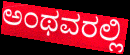
ಅಂಥವರಲ್ಲಿ